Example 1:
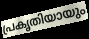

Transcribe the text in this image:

പ്രകൃതിയായും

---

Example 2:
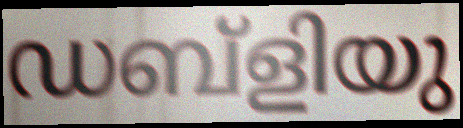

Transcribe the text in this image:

ഡബ്ളിയു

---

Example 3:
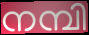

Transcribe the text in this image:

നമ്പി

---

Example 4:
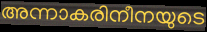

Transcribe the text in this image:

അന്നാകരിനീനയുടെ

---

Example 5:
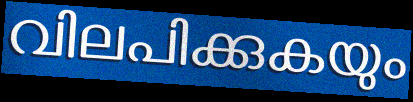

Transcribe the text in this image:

വിലപിക്കുകയും